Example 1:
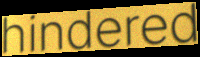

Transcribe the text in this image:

hindered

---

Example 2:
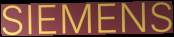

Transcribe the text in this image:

SIEMENS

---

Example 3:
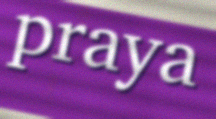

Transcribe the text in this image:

praya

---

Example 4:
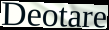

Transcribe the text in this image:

Deotare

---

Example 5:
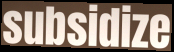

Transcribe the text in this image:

subsidize